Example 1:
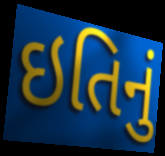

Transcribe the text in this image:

ઇતિનું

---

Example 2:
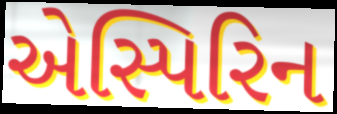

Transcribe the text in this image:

એસ્પિરિન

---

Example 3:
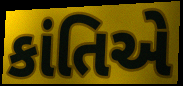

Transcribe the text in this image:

કાંતિએ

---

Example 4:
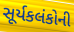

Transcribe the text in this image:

સૂર્યકલંકોની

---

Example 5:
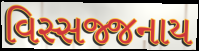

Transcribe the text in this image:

વિસ્સજ્જનાય